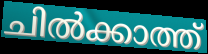
ചിൽക്കാത്ത്